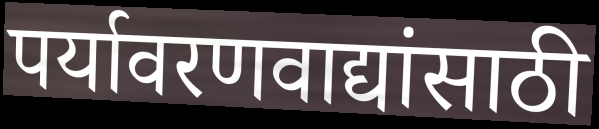
पर्यावरणवाद्यांसाठी